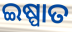
ଇଷ୍ପାତ